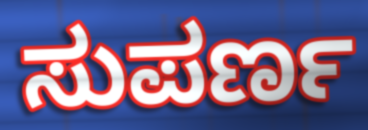
ಸುಪರ್ಣ